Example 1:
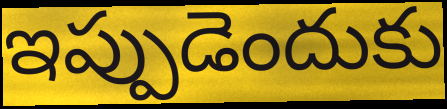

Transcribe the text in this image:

ఇప్పుడెందుకు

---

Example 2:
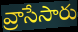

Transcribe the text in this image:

వ్రాసేసారు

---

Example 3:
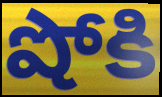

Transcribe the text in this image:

షోకి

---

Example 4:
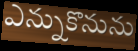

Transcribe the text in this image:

ఎన్నుకొనును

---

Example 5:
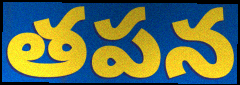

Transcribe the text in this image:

తపన